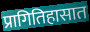
प्रागितिहासात